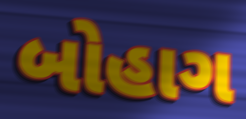
બોહાગ